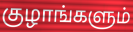
குழாங்களும்